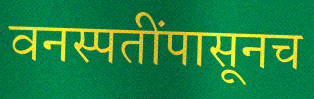
वनस्पतींपासूनच